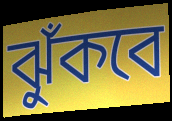
ঝুঁকবে